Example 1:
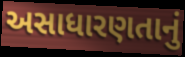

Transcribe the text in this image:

અસાધારણતાનું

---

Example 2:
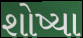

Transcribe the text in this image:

શોષ્યા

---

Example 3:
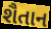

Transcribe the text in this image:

શૈતાન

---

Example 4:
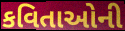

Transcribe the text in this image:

કવિતાઓની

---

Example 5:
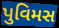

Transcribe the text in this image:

પુવિમસ